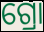
ଗ୍ରୋ